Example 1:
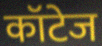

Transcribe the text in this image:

कॉटेज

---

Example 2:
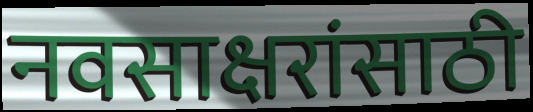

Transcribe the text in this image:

नवसाक्षरांसाठी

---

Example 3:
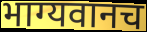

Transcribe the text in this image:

भाग्यवानच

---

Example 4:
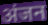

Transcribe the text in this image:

अंजन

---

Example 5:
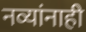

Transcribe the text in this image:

नव्यांनाही